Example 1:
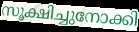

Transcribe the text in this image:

സൂക്ഷിച്ചുനോക്കി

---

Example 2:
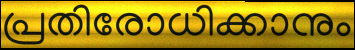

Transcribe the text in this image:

പ്രതിരോധിക്കാനും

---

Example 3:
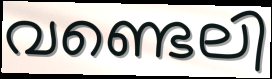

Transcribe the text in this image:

വണ്ടെലി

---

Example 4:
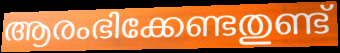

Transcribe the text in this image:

ആരംഭിക്കേണ്ടതുണ്ട്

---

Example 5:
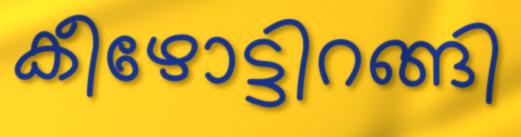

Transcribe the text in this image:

കീഴോട്ടിറങ്ങി